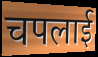
चपलाई